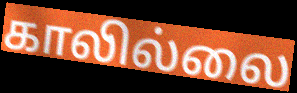
காலில்லை